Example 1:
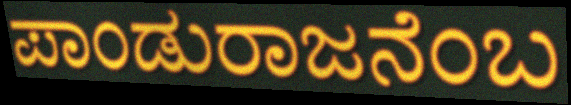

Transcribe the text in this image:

ಪಾಂಡುರಾಜನೆಂಬ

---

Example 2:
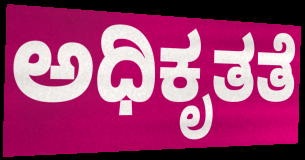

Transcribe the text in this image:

ಅಧಿಕೃತತೆ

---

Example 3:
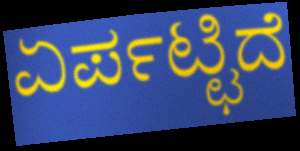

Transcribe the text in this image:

ಏರ್ಪಟ್ಟಿದೆ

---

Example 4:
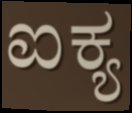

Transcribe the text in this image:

ಐಕ್ಯ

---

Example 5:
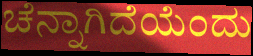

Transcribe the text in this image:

ಚೆನ್ನಾಗಿದೆಯೆಂದು